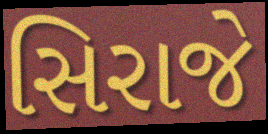
સિરાજે